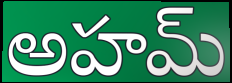
అహమ్